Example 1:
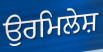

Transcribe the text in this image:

ਉਰਮਿਲੇਸ਼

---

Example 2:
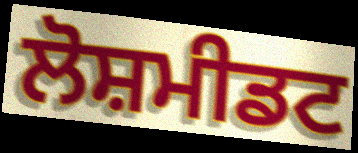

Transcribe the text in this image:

ਲੋਸ਼ਮੀਡਟ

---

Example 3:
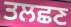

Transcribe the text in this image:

ਤਲਛਣ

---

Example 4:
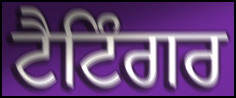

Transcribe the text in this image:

ਟੈਟਿੰਗਰ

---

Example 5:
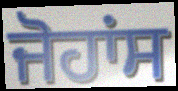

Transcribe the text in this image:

ਜੋਹਾਂਸ